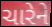
ચારેને